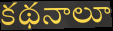
కథనాలూ